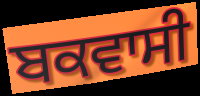
ਬਕਵਾਸੀ